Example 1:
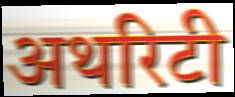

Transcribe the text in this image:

अथरिटी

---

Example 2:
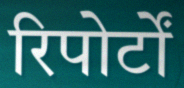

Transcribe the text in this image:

रिपोर्टों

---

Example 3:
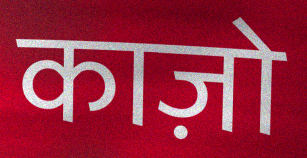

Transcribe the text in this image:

काज़ो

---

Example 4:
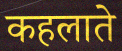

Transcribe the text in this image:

कहलाते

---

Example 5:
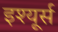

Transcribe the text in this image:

इश्यूर्स